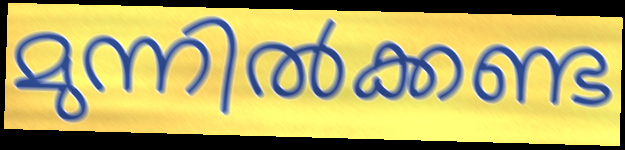
മുന്നിൽക്കണ്ട